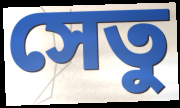
সেতু